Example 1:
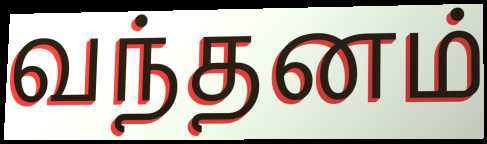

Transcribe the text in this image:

வந்தனம்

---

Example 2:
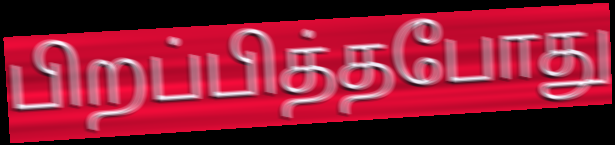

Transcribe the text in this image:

பிறப்பித்தபோது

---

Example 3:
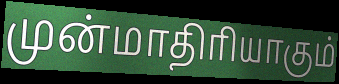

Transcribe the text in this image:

முன்மாதிரியாகும்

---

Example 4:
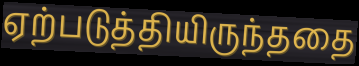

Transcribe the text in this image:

ஏற்படுத்தியிருந்ததை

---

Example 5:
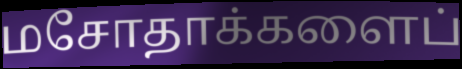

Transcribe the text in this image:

மசோதாக்களைப்